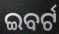
ଇବର୍ଟ